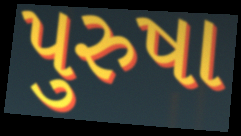
પુરુષા